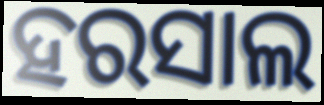
ହରସାଲ